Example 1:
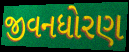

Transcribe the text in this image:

જીવનધોરણ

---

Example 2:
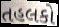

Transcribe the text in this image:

તહલકો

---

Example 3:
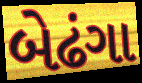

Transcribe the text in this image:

બેઢંગા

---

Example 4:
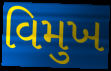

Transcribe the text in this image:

વિમુખ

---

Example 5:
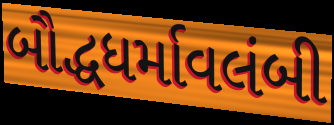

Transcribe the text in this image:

બૌદ્ધધર્માવલંબી